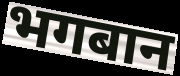
भगबान